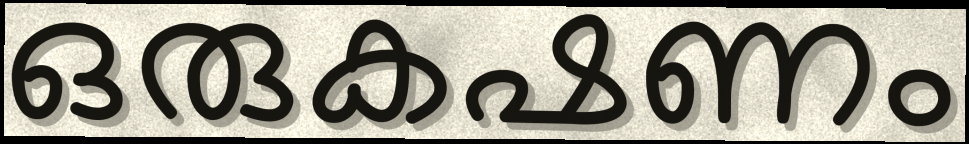
ഒരുകഷണം